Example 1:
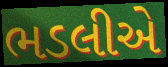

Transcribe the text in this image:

ભડલીએ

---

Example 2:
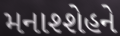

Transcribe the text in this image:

મનાશ્શેહને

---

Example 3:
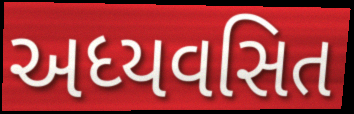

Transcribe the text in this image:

અધ્યવસિત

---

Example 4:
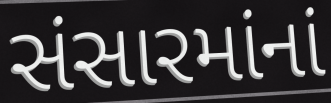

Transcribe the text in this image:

સંસારમાંનાં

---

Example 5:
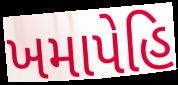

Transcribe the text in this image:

ખમાપેહિ